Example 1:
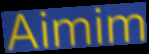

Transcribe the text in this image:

Aimim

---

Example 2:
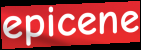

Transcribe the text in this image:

epicene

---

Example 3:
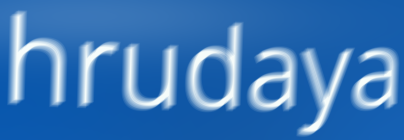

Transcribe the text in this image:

hrudaya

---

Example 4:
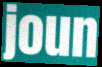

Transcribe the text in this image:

joun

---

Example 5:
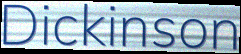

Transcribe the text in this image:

Dickinson